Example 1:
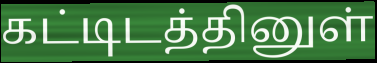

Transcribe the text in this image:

கட்டிடத்தினுள்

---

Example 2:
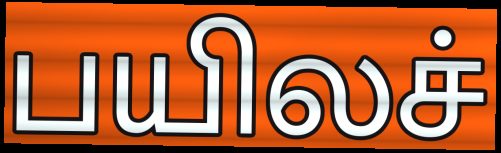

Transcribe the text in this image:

பயிலச்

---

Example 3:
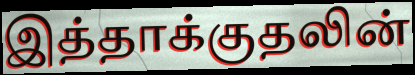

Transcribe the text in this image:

இத்தாக்குதலின்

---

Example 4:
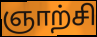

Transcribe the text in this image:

ஞாற்சி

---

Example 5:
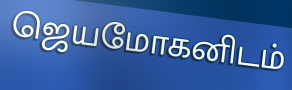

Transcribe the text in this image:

ஜெயமோகனிடம்